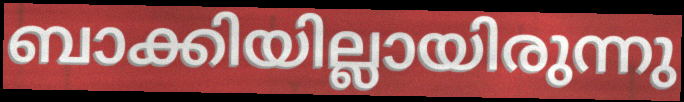
ബാക്കിയില്ലായിരുന്നു